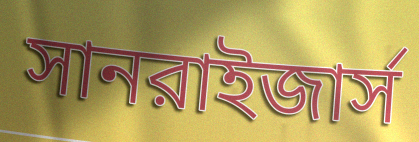
সানরাইজার্স